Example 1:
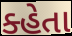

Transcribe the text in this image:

ક્હેતા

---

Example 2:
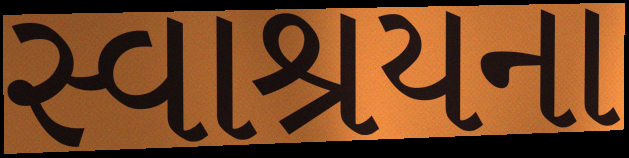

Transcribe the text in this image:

સ્વાશ્રયના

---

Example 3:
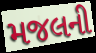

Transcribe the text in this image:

મજલની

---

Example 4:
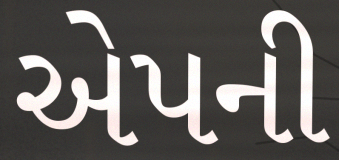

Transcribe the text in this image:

એપની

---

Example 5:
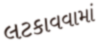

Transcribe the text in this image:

લટકાવવામાં